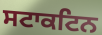
ਸਟਾਕਟਿਨ